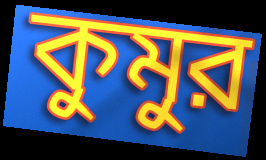
কুমুর